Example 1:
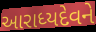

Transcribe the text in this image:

આરાધ્યદેવને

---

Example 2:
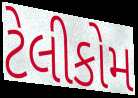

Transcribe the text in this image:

ટેલીકોમ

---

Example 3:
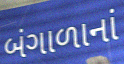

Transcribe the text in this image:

બંગાળાનાં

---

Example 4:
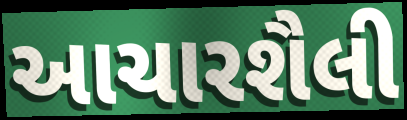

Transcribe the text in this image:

આચારશૈલી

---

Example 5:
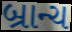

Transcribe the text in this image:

બ્રાન્ચ